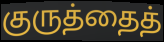
குருத்தைத்